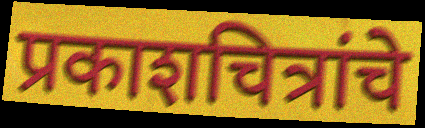
प्रकाशचित्रांचे